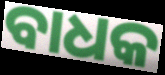
ବାଧକ